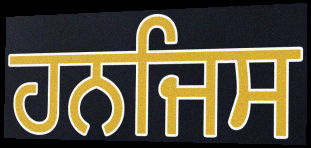
ਹਨਜਿਸ